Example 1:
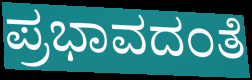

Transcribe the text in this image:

ಪ್ರಭಾವದಂತೆ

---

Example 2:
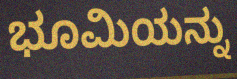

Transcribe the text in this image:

ಭೂಮಿಯನ್ನು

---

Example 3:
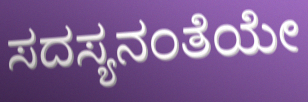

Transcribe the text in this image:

ಸದಸ್ಯನಂತೆಯೇ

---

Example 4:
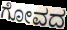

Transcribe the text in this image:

ಗೋವದ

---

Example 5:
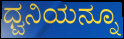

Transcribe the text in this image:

ಧ್ವನಿಯನ್ನೂ